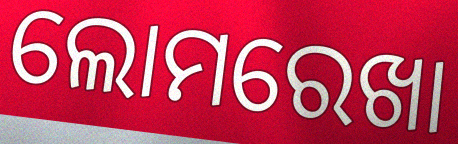
ଲୋମରେଖା